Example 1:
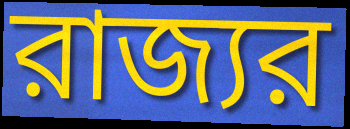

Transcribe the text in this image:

রাজ্যর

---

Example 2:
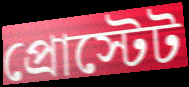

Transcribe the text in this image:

প্রোস্টেট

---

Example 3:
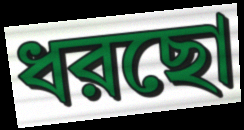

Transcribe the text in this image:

ধরছো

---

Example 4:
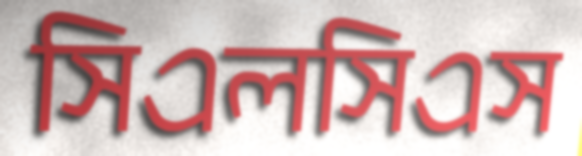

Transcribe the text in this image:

সিএলসিএস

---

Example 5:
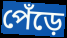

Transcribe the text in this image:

পেঁড়ে